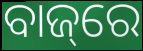
ବାଜ୍‌ରେ